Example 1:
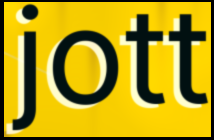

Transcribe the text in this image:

jott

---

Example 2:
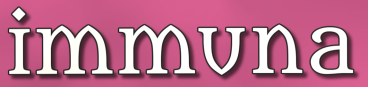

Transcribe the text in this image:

immuna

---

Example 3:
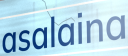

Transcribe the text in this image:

asalaina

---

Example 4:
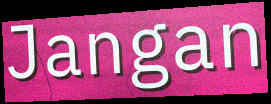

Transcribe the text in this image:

Jangan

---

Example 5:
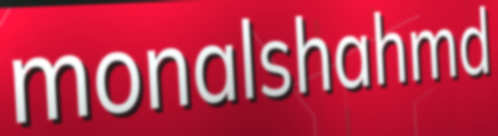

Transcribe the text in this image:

monalshahmd